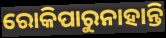
ରୋକିପାରୁନାହାନ୍ତି